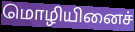
மொழியினைச்